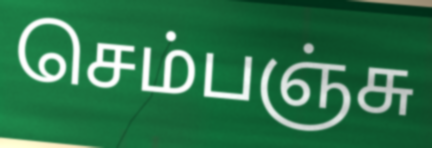
செம்பஞ்சு